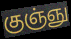
குஞ்ஞு